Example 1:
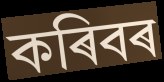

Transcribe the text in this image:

কৰিবৰ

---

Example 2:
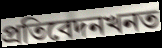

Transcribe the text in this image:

প্ৰতিবেদনখনত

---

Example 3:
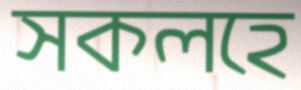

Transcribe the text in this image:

সকলহে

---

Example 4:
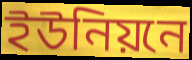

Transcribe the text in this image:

ইউনিয়নে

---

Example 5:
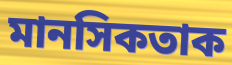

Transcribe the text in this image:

মানসিকতাক